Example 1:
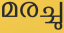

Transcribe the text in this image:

മരച്ചു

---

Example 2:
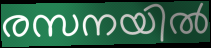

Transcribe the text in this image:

രസനയിൽ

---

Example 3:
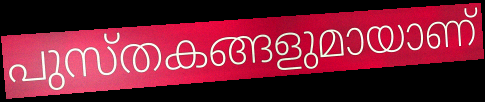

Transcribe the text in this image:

പുസ്തകങ്ങളുമായാണ്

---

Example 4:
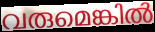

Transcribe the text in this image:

വരുമെങ്കിൽ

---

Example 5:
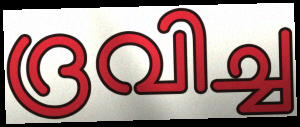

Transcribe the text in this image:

ദ്രവിച്ച